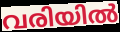
വരിയിൽ